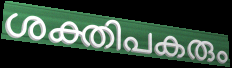
ശക്തിപകരും